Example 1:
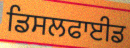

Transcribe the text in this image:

ਡਿਸਲਫਾਈਡ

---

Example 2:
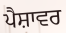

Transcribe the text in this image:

ਪੈਸ਼ਾਵਰ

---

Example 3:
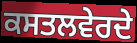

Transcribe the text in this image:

ਕਸਤਲਵੇਰਦੇ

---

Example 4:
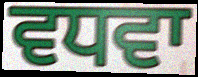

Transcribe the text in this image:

ਵਧਵਾ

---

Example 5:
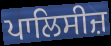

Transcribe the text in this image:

ਪਾਲਿਸੀਜ਼